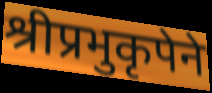
श्रीप्रभुकृपेने